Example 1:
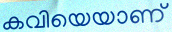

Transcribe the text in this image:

കവിയെയാണ്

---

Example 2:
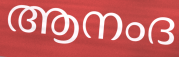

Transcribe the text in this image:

ആനംദ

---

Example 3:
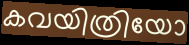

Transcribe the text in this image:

കവയിത്രിയോ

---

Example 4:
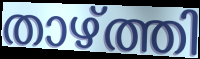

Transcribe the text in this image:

താഴ്ത്തി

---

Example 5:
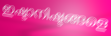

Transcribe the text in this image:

ഇഷ്ടാനിഷ്ടങ്ങളെ